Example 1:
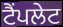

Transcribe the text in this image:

ਟੈਂਪਲੇਟ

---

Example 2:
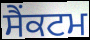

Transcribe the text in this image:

ਸੈੰਕਟਮ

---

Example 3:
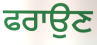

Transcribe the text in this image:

ਫਰਾਉਣ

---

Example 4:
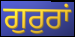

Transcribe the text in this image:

ਗੁਰੁਰਾਂ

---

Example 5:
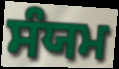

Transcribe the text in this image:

ਸੰਯਮ